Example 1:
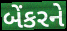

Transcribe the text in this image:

બેંકરને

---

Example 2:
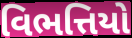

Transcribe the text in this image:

વિભત્તિયો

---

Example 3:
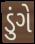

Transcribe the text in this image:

ડુંગે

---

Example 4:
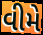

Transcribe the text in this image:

વીમે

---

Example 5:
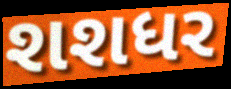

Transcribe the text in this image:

શશધર